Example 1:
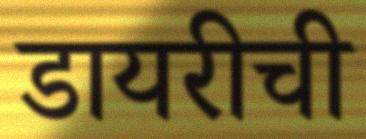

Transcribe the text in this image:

डायरीची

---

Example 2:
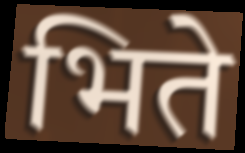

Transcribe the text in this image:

भिते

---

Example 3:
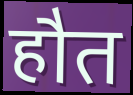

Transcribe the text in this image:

हौत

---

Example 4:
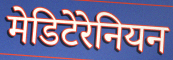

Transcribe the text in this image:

मेडिटेरेनियन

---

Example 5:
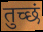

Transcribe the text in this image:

तुच्छं